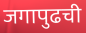
जगापुढची